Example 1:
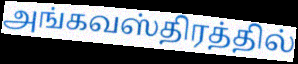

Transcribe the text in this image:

அங்கவஸ்திரத்தில்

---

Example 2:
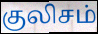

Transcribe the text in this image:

குலிசம்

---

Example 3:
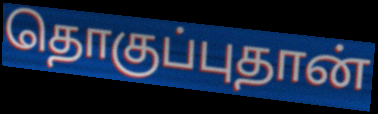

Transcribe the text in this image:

தொகுப்புதான்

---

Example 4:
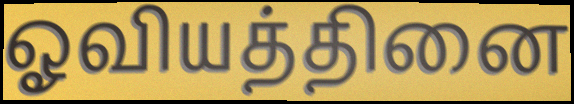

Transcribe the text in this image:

ஓவியத்தினை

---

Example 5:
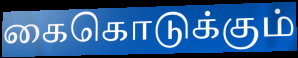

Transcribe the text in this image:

கைகொடுக்கும்